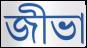
জীভা